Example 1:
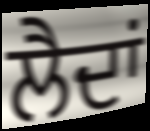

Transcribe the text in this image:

ਲੈਦਾਂ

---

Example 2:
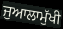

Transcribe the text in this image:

ਜੁਆਲਾਮੁੱਖੀ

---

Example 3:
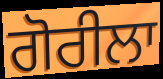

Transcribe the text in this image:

ਗੋਰੀਲਾ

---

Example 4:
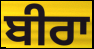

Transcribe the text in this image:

ਬੀਰਾ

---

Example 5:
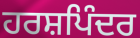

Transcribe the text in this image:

ਹਰਸ਼ਪਿੰਦਰ